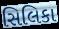
સિલિકા